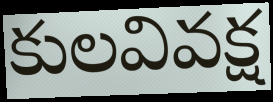
కులవివక్ష